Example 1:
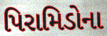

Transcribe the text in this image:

પિરામિડોના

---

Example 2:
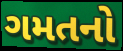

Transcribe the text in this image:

ગમતનો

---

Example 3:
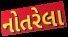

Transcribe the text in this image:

નોતરેલા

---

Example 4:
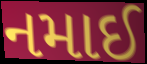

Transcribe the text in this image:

નમાઈ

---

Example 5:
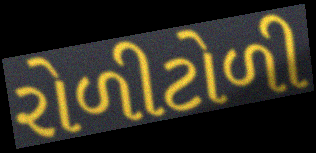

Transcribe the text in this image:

રોળીટોળી